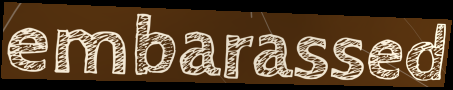
embarassed